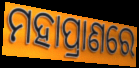
ମହାପ୍ରାଣରେ